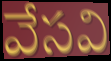
వేసవి